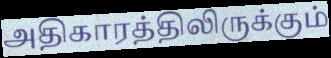
அதிகாரத்திலிருக்கும்